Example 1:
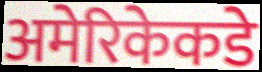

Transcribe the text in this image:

अमेरिकेकडे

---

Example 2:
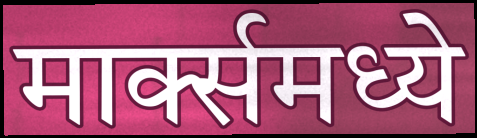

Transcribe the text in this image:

मार्क्समध्ये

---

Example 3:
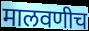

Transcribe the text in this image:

मालवणीच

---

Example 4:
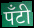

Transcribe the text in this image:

पॅंटी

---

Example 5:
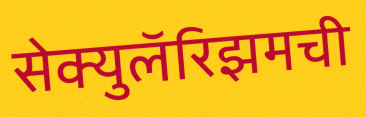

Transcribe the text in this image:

सेक्युलॅरिझमची